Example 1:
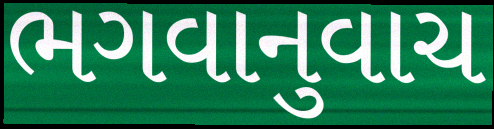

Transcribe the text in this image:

ભગવાનુવાચ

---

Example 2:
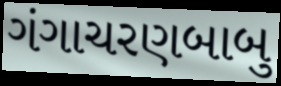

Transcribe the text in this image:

ગંગાચરણબાબુ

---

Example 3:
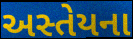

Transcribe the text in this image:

અસ્તેયના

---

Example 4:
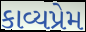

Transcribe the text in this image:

કાવ્યપ્રેમ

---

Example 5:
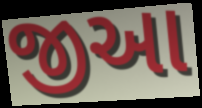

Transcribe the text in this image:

જીઆ